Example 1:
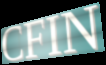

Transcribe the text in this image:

CFIN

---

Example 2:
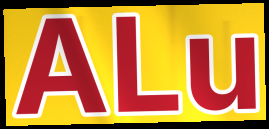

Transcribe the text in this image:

ALu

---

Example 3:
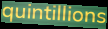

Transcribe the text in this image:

quintillions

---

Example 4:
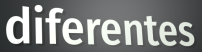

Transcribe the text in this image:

diferentes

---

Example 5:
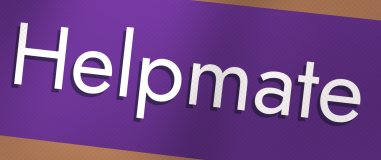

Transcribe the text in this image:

Helpmate